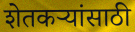
शेतकऱ्यांसाठी